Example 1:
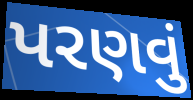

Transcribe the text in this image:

પરણવું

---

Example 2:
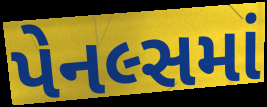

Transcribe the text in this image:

પેનલ્સમાં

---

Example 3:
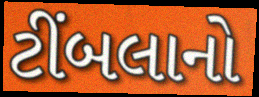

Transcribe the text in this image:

ટીંબલાનો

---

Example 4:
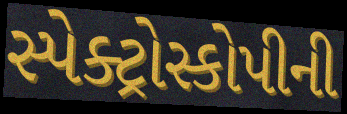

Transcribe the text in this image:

સ્પેક્ટ્રોસ્કોપીની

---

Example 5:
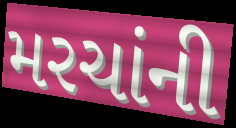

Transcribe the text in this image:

મરચાંની